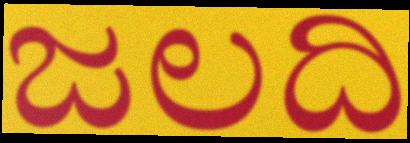
ಜಲದಿ